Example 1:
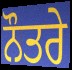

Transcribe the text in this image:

ਨੌਤਰੇ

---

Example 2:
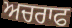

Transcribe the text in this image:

ਅਚਰਾਫ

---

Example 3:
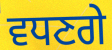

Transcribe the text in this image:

ਵਧਣਗੇ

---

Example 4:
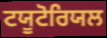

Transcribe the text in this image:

ਟਯੂਟੋਰਿਯਲ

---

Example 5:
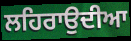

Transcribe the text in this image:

ਲਹਿਰਾਉਦੀਆ